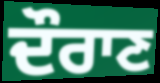
ਦੌਰਾਣ